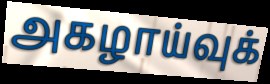
அகழாய்வுக்